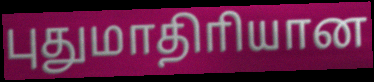
புதுமாதிரியான